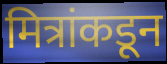
मित्रांकडून